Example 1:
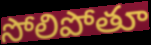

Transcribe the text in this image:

సోలిపోతూ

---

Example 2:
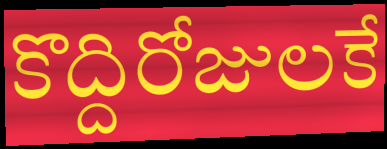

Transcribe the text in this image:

కొద్దిరోజులకే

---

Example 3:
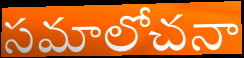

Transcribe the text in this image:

సమాలోచనా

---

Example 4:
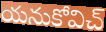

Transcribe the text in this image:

యనుకోవిచ్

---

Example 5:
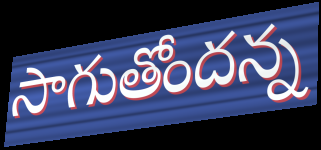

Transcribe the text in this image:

సాగుతోందన్న